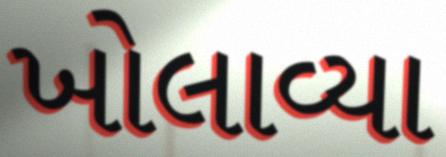
ખોલાવ્યા